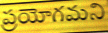
ప్రయోగమని